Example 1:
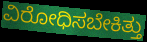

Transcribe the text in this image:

ವಿರೋಧಿಸಬೇಕಿತ್ತು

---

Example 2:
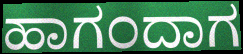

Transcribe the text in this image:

ಹಾಗಂದಾಗ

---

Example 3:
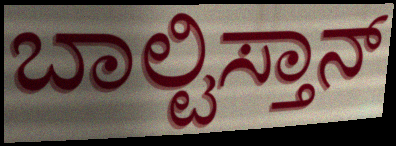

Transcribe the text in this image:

ಬಾಲ್ಟಿಸ್ತಾನ್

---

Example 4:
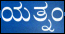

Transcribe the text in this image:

ಯತ್ನಂ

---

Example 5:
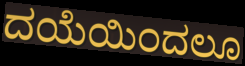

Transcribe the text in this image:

ದಯೆಯಿಂದಲೂ